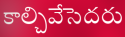
కాల్చివేసెదరు